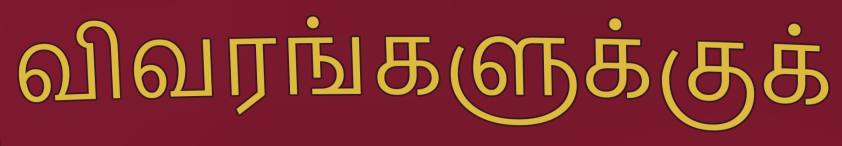
விவரங்களுக்குக்